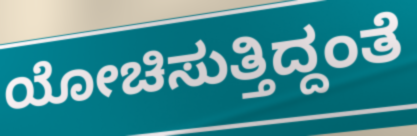
ಯೋಚಿಸುತ್ತಿದ್ದಂತೆ